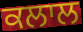
ਕਲਾਲ